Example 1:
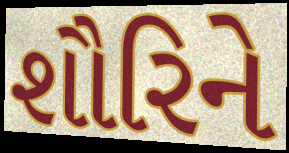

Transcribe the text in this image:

શૌરિને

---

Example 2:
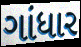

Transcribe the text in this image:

ગાંધાર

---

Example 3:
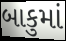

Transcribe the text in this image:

બાકુમાં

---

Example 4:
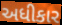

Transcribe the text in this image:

અધીકાર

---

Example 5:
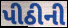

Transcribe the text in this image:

પીઠીની